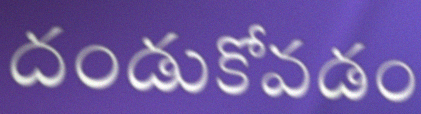
దండుకోవడం